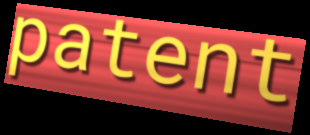
patent